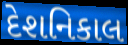
દેશનિકાલ